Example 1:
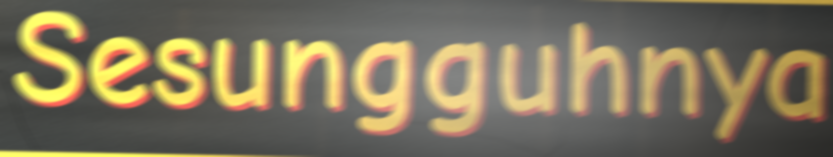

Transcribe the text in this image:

Sesungguhnya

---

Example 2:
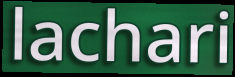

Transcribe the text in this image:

lachari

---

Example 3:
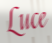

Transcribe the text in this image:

Luce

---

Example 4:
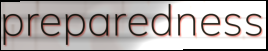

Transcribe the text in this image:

preparedness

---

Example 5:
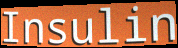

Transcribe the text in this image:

Insulin